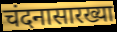
चंदनासारख्या